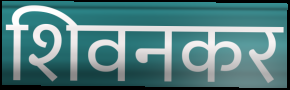
शिवनकर